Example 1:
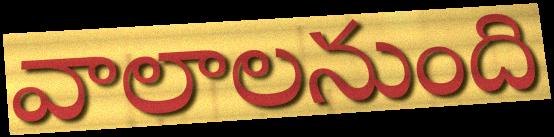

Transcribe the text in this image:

వాలాలనుంది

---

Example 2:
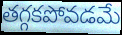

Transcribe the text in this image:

తగ్గకపోవడమే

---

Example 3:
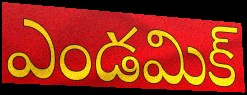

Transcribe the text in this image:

ఎండమిక్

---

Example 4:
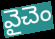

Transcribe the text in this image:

వైచెం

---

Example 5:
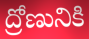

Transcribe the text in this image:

ద్రోణునికి